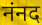
नंनद